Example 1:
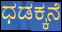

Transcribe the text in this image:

ಧಡಕ್ಕನೆ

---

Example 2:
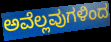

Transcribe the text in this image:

ಅವೆಲ್ಲವುಗಳಿಂದ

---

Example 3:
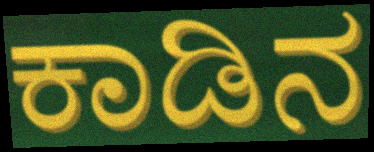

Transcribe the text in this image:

ಕಾಡಿನ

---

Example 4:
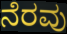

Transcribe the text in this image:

ನೆರವು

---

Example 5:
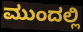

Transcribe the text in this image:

ಮುಂದಲ್ಲಿ